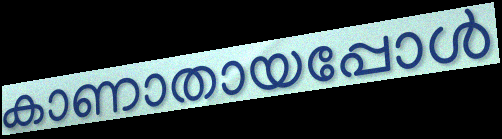
കാണാതായപ്പോൾ